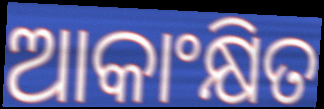
ଆକାଂକ୍ଷିତ